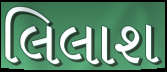
લિલાશ